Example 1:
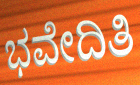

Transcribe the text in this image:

ಭವೇದಿತಿ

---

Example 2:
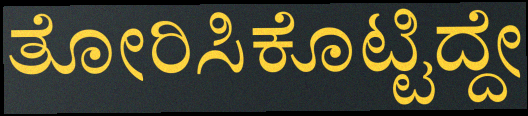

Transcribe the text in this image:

ತೋರಿಸಿಕೊಟ್ಟಿದ್ದೇ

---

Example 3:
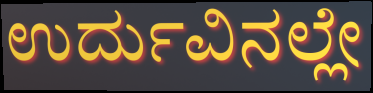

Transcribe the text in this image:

ಉರ್ದುವಿನಲ್ಲೇ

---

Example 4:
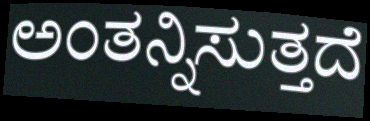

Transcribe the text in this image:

ಅಂತನ್ನಿಸುತ್ತದೆ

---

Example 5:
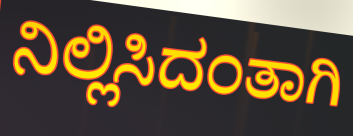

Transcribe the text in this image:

ನಿಲ್ಲಿಸಿದಂತಾಗಿ